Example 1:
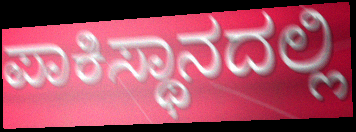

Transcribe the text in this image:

ಪಾಕಿಸ್ಥಾನದಲ್ಲಿ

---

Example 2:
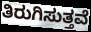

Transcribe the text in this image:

ತಿರುಗಿಸುತ್ತವೆ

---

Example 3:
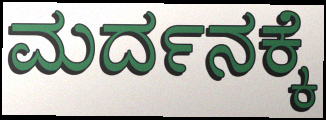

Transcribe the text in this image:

ಮರ್ದನಕ್ಕೆ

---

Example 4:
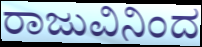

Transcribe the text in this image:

ರಾಜುವಿನಿಂದ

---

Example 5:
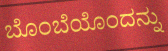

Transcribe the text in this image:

ಬೊಂಬೆಯೊಂದನ್ನು